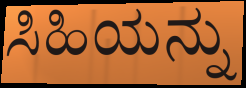
ಸಿಹಿಯನ್ನು